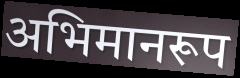
अभिमानरूप